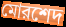
মোরশেদ